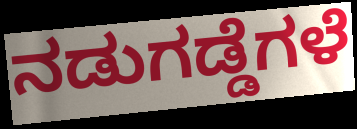
ನಡುಗಡ್ಡೆಗಳೆ